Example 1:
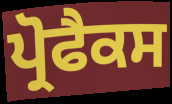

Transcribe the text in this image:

ਪ੍ਰੋਫੈਕਸ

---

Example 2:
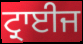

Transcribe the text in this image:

ਟ੍ਰਾਈਜ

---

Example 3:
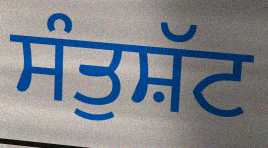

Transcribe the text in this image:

ਸੰਤੁਸ਼ੱਟ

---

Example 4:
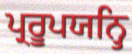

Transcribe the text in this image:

ਪ੍ਰਰੂਪਯਨ੍ਤਿ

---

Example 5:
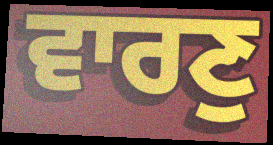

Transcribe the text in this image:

ਵਾਰਣੁ